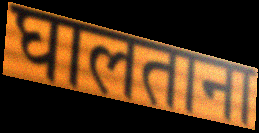
घालताना